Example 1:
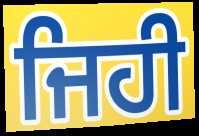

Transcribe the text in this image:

ਜਿਹੀ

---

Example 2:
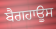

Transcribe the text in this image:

ਬੈਗਹਾਊਸ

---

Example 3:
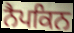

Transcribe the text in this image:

ਨੈਪਕਿਨ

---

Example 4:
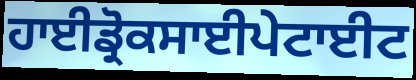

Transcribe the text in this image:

ਹਾਈਡ੍ਰੋਕਸਾਈਪੇਟਾਈਟ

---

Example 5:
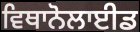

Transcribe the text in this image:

ਵਿਥਾਨੋਲਾਈਡ